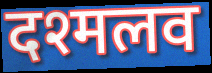
दश्मलव